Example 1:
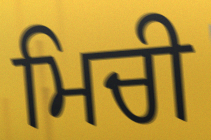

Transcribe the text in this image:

ਮਿਚੀ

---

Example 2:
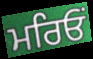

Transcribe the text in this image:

ਮਰਿਓਂ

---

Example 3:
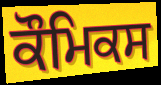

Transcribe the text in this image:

ਕੌਮਿਕਸ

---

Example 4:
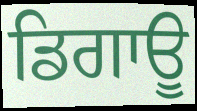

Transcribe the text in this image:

ਡਿਗਾਊ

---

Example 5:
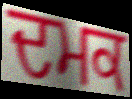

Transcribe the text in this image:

ਦਮਕ